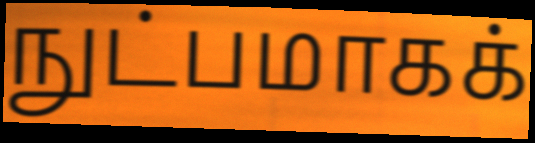
நுட்பமாகக்